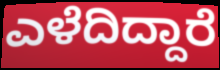
ಎಳೆದಿದ್ದಾರೆ